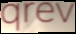
qrev